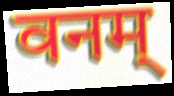
वनम्